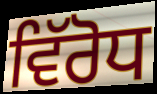
ਵਿੱਰੋਧ